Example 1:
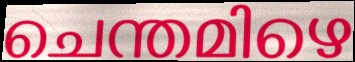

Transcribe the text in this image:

ചെന്തമിഴെ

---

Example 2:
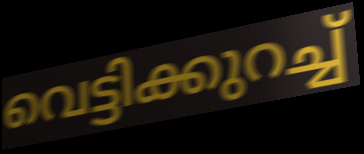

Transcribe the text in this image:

വെട്ടിക്കുറച്ച്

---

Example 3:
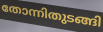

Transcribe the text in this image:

തോന്നിതുടങ്ങി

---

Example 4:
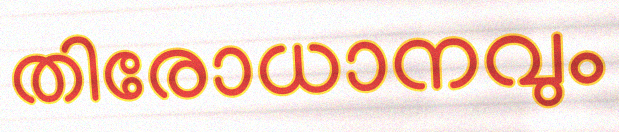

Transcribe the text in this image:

തിരോധാനവും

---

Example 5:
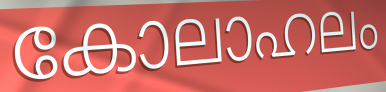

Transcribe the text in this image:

കോലാഹലം